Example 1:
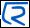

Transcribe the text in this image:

হে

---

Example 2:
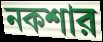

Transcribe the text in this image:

নকশার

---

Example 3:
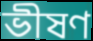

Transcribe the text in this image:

ভীষণ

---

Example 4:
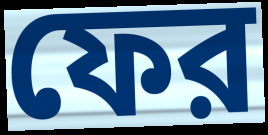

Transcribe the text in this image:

ফের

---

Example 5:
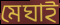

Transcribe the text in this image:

মেঘাই